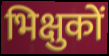
भिक्षुकों